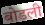
बोडली